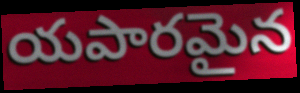
యపారమైన